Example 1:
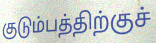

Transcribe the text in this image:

குடும்பத்திற்குச்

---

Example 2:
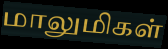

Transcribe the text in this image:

மாலுமிகள்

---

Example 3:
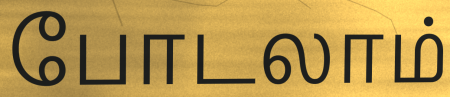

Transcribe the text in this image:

போடலாம்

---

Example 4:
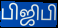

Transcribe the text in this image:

பிஜிபி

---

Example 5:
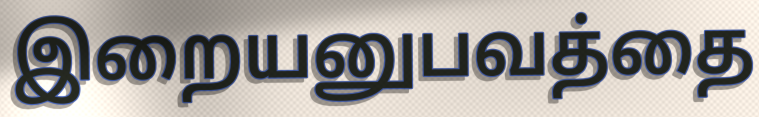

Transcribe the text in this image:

இறையனுபவத்தை